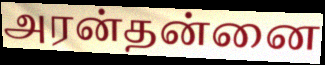
அரன்தன்னை